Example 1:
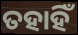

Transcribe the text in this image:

ତହାହିଁ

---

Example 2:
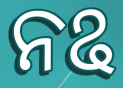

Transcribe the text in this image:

ନୡ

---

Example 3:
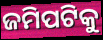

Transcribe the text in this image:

ଜମିପଟିକୁ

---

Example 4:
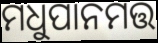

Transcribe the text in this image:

ମଧୁପାନମତ୍ତ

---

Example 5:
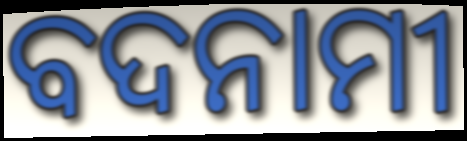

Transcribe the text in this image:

ବଦନାମୀ